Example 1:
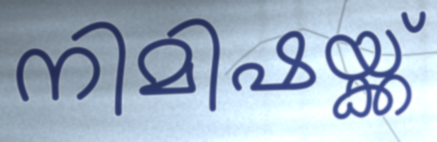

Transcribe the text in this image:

നിമിഷയ്ക്ക്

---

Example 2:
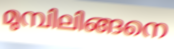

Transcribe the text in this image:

മുമ്പിലിങ്ങനെ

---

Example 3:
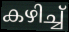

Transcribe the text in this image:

കഴിച്ച്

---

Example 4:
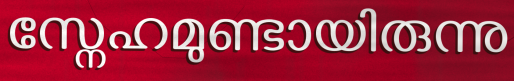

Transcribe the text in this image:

സ്നേഹമുണ്ടായിരുന്നു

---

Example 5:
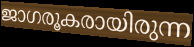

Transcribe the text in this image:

ജാഗരൂകരായിരുന്ന